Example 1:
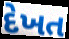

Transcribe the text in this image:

દેખત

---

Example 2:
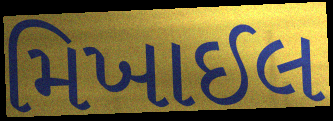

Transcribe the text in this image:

મિખાઈલ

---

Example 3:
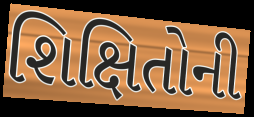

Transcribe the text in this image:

શિક્ષિતોની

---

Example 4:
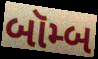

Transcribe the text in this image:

બૉમ્બ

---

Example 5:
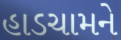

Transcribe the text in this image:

હાડચામને